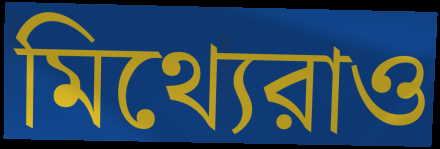
মিথ্যেরাও